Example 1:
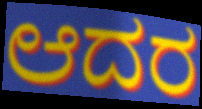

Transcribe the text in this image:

ಆದರ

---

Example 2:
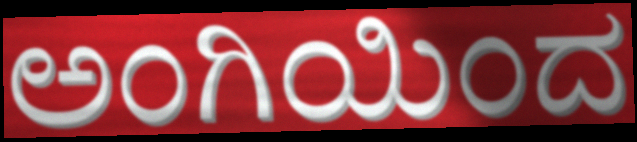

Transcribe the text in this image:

ಅಂಗಿಯಿಂದ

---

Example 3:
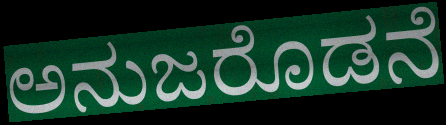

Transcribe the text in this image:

ಅನುಜರೊಡನೆ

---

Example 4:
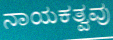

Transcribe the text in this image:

ನಾಯಕತ್ವವು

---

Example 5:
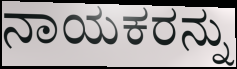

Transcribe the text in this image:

ನಾಯಕರನ್ನು